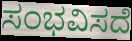
ಸಂಭವಿಸದೆ